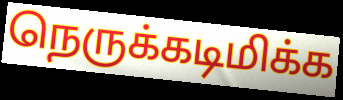
நெருக்கடிமிக்க